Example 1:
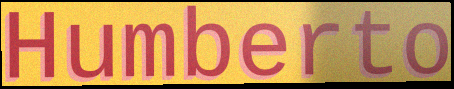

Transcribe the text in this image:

Humberto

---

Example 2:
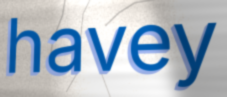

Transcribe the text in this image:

havey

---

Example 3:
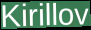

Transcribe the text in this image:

Kirillov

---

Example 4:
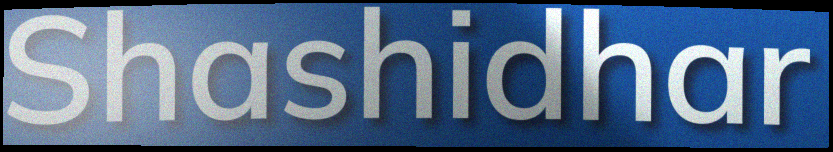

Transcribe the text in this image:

Shashidhar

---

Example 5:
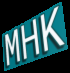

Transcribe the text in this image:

MHK